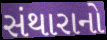
સંથારાનો